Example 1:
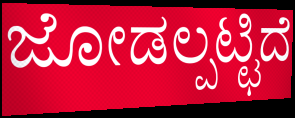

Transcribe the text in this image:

ಜೋಡಲ್ಪಟ್ಟಿದೆ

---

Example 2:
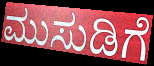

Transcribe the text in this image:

ಮುಸುಡಿಗೆ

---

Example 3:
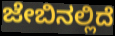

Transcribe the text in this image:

ಜೇಬಿನಲ್ಲಿದೆ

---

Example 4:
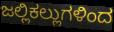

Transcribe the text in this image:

ಜಲ್ಲಿಕಲ್ಲುಗಳಿಂದ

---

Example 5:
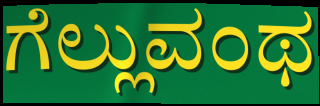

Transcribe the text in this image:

ಗೆಲ್ಲುವಂಥ